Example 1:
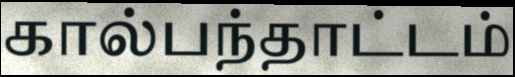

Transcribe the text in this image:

கால்பந்தாட்டம்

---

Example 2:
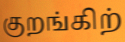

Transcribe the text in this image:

குறங்கிற்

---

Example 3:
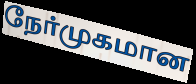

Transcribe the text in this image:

நேர்முகமான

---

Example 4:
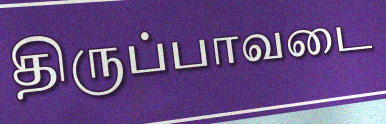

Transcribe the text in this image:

திருப்பாவடை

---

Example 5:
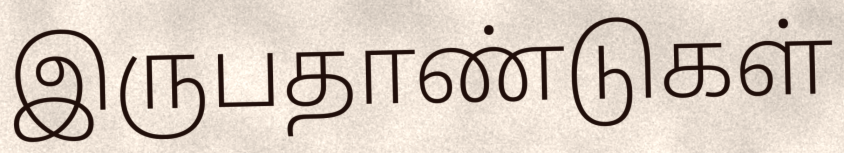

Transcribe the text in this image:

இருபதாண்டுகள்